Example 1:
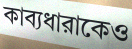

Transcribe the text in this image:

কাব্যধারাকেও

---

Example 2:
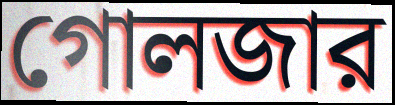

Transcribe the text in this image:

গোলজার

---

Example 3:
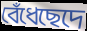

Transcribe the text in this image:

বেঁধেছেদে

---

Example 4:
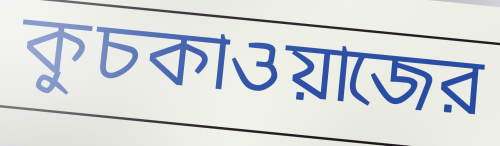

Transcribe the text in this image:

কুচকাওয়াজের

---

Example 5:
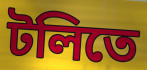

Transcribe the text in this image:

টলিতে